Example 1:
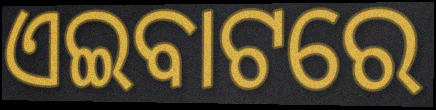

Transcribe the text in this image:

ଏଇବାଟରେ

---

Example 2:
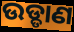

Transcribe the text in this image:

ଉଡ୍ଡାଣ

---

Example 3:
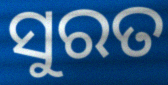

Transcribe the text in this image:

ସୁରତ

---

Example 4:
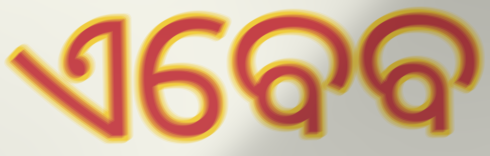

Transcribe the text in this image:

ଏବେବ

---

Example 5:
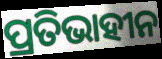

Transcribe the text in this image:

ପ୍ରତିଭାହୀନ